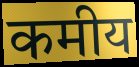
कमीय